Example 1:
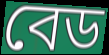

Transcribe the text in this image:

বেড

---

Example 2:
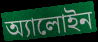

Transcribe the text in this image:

অ্যালোইন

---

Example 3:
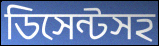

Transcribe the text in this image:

ডিসেন্টসহ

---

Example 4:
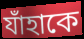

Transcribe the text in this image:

যাঁহাকে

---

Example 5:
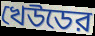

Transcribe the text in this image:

খেউডের